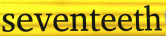
seventeeth